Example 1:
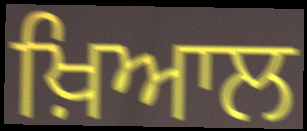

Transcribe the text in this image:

ਖ਼ਿਆਲ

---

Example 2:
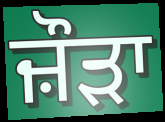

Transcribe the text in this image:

ਜ਼ੌੜਾ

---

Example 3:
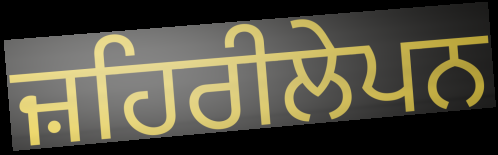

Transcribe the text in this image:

ਜ਼ਹਿਰੀਲੇਪਨ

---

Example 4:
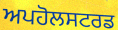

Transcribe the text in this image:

ਅਪਹੋਲਸਟਰਡ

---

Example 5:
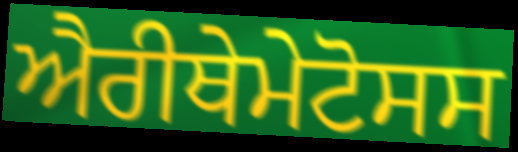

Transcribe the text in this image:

ਐਰੀਥੇਮੇਟੋਸਸ